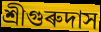
শ্ৰীগুৰুদাস